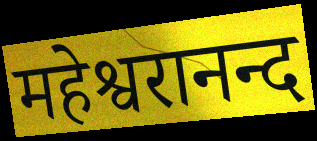
महेश्वरानन्द